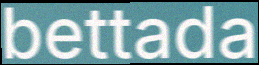
bettada